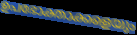
ഉപഭോക്താക്കളെയും